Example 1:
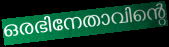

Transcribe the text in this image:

ഒരഭിനേതാവിന്റെ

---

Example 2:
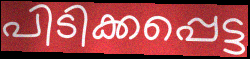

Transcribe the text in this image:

പിടിക്കപ്പെട്ട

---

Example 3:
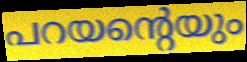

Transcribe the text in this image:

പറയന്റെയും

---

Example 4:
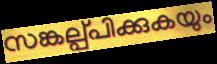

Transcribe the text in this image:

സങ്കല്പ്പിക്കുകയും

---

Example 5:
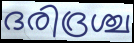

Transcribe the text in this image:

ദരിദ്രശ്ച